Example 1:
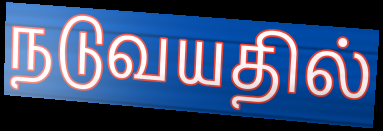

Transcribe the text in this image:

நடுவயதில்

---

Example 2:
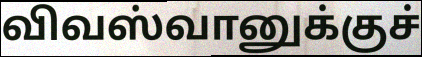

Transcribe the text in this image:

விவஸ்வானுக்குச்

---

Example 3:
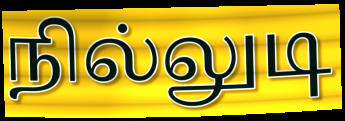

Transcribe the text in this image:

நில்லுடி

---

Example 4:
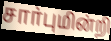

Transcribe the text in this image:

சார்புமின்றி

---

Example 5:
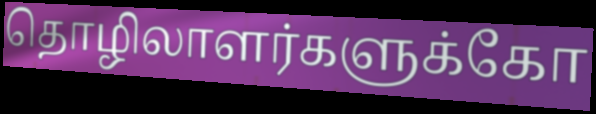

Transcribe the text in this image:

தொழிலாளர்களுக்கோ